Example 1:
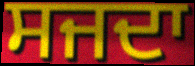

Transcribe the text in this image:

ਸਜਦਾ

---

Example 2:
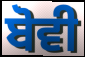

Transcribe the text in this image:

ਬੋਵੀ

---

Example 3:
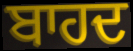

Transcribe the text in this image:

ਬਾਹਦ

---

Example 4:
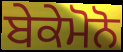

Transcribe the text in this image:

ਬੇਕੇਮੋਨੋ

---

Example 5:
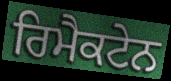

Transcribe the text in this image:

ਰਿਮੈਕਟੇਨ